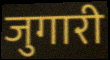
जुगारी